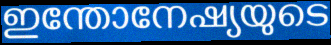
ഇന്തോനേഷ്യയുടെ